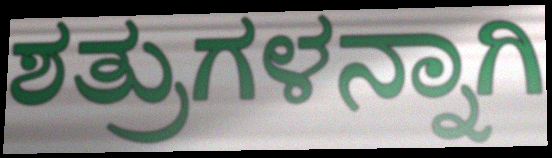
ಶತ್ರುಗಳನ್ನಾಗಿ